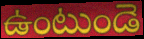
ఉంటుండె